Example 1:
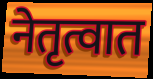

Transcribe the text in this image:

नेतृत्वात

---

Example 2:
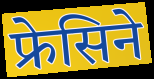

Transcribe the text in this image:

फ्रेसिने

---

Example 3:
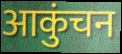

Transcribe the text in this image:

आकुंचन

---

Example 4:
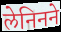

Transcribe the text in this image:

लेनिनने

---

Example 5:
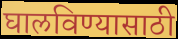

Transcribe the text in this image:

घालविण्यासाठी